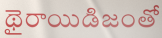
థైరాయిడిజంతో